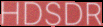
HDSDR